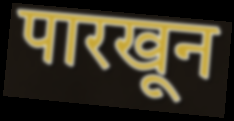
पारखून